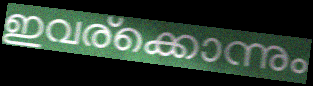
ഇവര്ക്കൊന്നും